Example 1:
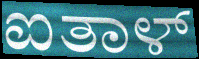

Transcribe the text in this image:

ಐತಾಳ್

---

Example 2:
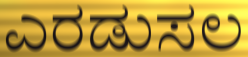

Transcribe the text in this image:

ಎರಡುಸಲ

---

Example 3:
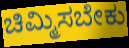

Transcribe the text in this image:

ಚಿಮ್ಮಿಸಬೇಕು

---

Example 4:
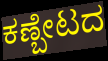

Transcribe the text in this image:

ಕಣ್ಬೇಟದ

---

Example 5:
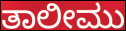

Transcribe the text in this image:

ತಾಲೀಮು